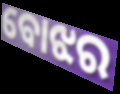
ବୋଝର